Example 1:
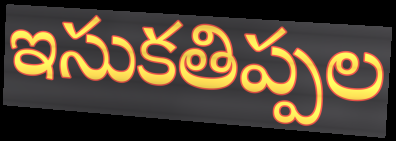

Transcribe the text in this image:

ఇసుకతిప్పల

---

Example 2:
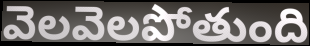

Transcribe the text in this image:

వెలవెలపోతుంది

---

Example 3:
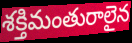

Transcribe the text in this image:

శక్తిమంతురాలైన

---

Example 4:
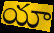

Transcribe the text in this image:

యా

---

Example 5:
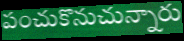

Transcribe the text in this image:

పంచుకొనుచున్నారు